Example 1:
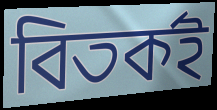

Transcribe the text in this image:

বিতৰ্কই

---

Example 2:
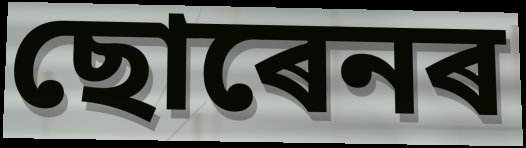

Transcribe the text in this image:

ছোৰেনৰ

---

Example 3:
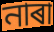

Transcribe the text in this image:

নাৰা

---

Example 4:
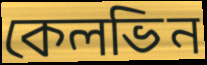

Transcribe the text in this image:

কেলভিন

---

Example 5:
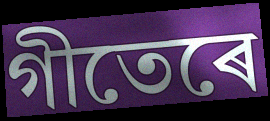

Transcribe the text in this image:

গীতেৰে